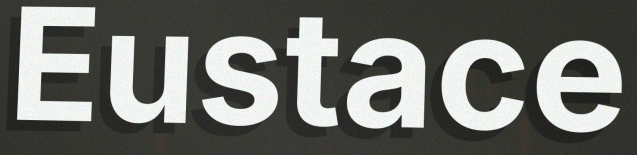
Eustace